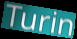
Turin